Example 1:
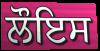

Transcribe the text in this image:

ਲੌਇਸ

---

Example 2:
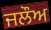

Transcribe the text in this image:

ਜਲੌਅ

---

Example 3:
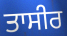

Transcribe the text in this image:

ਤਾਸੀਰ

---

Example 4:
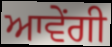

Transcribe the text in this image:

ਆਵੇਂਗੀ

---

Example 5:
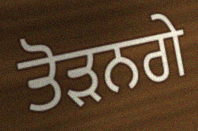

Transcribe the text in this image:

ਤੋੜਨਗੇ